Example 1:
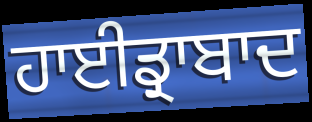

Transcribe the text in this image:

ਹਾਈਡ੍ਰਾਬਾਦ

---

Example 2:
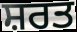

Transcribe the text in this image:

ਸ਼ਰਤ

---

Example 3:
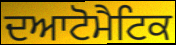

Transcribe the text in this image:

ਦਆਟੋਮੈਟਿਕ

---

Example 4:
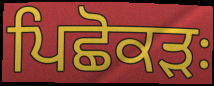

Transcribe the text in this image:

ਪਿਛੋਕੜਃ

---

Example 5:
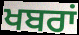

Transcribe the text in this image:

ਖਬਰਾਂ